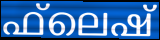
ഫ്‌ലെഷ്